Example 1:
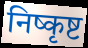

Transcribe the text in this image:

निष्कृष्ट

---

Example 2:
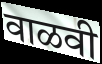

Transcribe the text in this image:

वाळवी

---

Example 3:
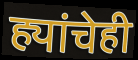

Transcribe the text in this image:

ह्यांचेही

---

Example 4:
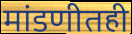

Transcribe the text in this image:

मांडणीतही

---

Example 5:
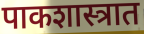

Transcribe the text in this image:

पाकशास्त्रात